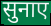
सुनाए